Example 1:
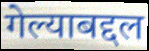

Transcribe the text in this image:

गेल्याबद्दल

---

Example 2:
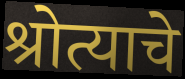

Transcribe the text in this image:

श्रोत्याचे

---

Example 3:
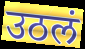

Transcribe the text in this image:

उठलं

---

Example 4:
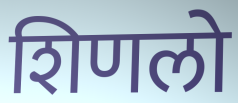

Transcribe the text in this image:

शिणलो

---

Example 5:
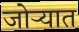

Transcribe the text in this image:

जोऱ्यात